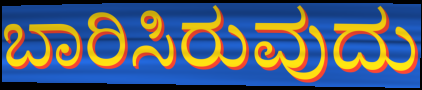
ಬಾರಿಸಿರುವುದು